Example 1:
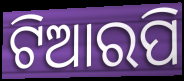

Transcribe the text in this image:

ଟିଆରପି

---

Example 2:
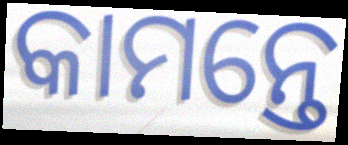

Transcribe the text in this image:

କାମନ୍ତେ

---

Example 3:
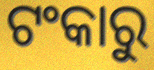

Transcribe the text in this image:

ଟଂକାରୁ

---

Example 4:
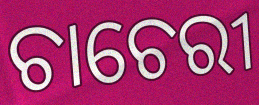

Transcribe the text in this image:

ଚାଚେରୀ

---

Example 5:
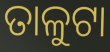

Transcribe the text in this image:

ତାଳୁଟା